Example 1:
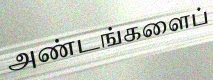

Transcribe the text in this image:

அண்டங்களைப்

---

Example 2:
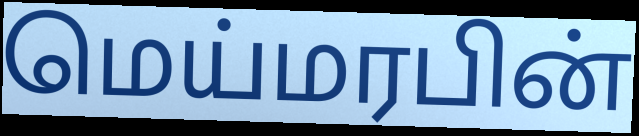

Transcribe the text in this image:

மெய்மரபின்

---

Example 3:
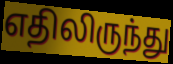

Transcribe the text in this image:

எதிலிருந்து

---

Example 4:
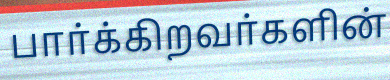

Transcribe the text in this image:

பார்க்கிறவர்களின்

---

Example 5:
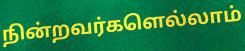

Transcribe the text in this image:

நின்றவர்களெல்லாம்